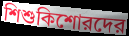
শিশুকিশোরদের